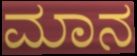
ಮಾನ